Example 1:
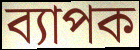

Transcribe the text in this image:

ব্যাপক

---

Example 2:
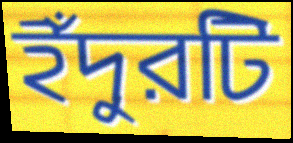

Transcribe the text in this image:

ইঁদুরটি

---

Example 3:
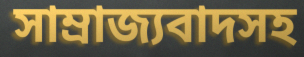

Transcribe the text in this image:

সাম্রাজ্যবাদসহ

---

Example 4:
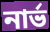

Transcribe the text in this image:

নার্ভ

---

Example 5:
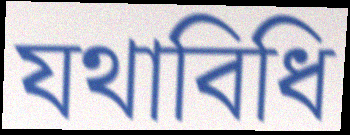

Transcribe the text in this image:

যথাবিধি